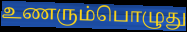
உணரும்பொழுது